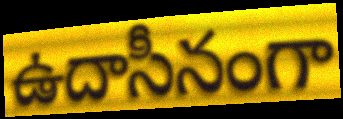
ఉదాసీనంగా